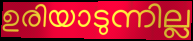
ഉരിയാടുന്നില്ല